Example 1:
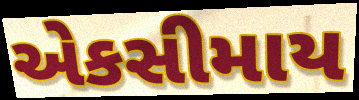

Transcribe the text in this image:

એકસીમાય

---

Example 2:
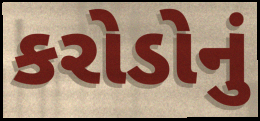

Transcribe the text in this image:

કરોડોનું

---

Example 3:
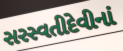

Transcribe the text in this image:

સરસ્વતીદેવીનાં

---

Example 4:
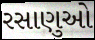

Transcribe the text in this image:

રસાણુઓ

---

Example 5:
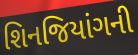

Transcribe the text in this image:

શિનજિયાંગની